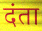
दंता